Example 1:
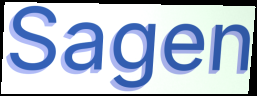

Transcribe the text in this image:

Sagen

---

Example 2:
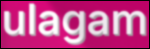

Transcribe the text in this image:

ulagam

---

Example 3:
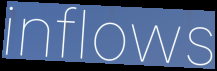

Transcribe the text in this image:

inflows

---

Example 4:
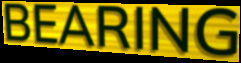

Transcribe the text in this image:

BEARING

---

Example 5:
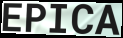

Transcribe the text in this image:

EPICA